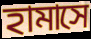
হামাসে